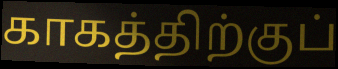
காகத்திற்குப்